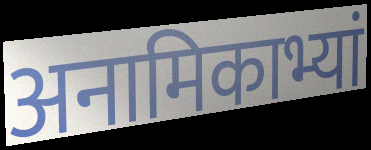
अनामिकाभ्यां